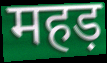
महड़